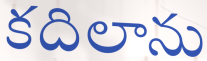
కదిలాను